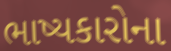
ભાષ્યકારોના